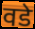
वडे